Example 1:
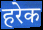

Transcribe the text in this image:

हरेक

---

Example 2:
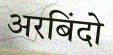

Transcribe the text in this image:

अरबिंदो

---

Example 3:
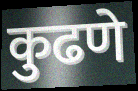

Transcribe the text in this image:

कुढणे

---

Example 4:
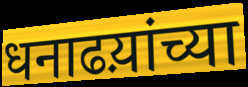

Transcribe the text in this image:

धनाढय़ांच्या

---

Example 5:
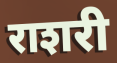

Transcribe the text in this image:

राशरी